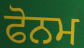
ਫੋਨਮ